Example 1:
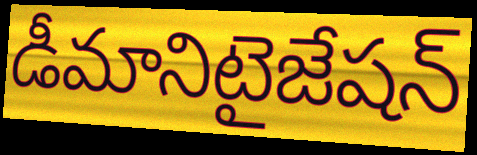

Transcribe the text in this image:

డీమానిటైజేషన్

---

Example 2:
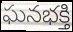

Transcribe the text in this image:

ఘనభక్తి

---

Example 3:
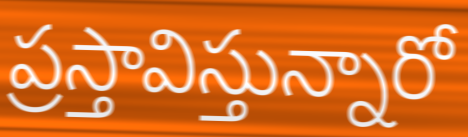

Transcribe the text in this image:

ప్రస్తావిస్తున్నారో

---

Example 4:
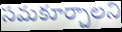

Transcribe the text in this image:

సమకూర్చాలని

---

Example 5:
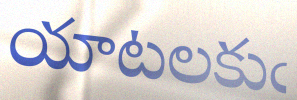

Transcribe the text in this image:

యాటలకుఁ